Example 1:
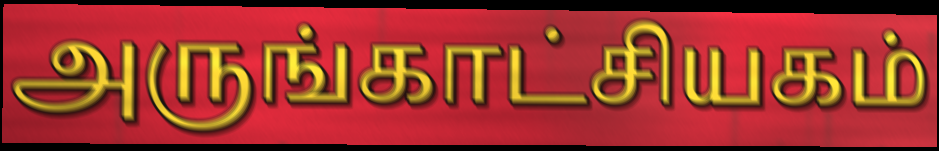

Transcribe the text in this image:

அருங்காட்சியகம்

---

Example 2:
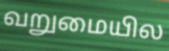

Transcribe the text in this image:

வறுமையில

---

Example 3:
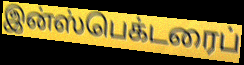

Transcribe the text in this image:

இன்ஸ்பெக்டரைப்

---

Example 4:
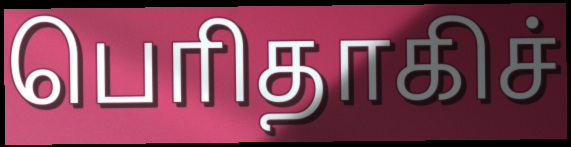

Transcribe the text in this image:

பெரிதாகிச்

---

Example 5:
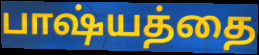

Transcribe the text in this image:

பாஷ்யத்தை